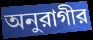
অনুরাগীর